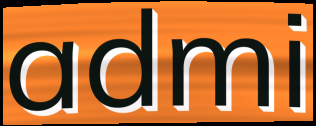
admi